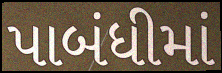
પાબંધીમાં